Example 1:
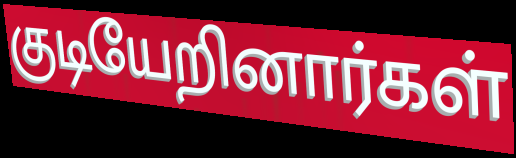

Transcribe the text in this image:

குடியேறினார்கள்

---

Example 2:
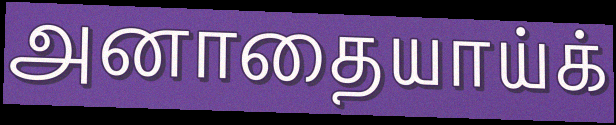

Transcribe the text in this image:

அனாதையாய்க்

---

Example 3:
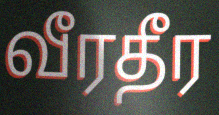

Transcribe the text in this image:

வீரதீர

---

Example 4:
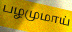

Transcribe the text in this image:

பழமுமாய்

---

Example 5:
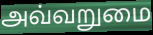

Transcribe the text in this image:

அவ்வறுமை